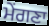
ਮੇਂਗਣਾ